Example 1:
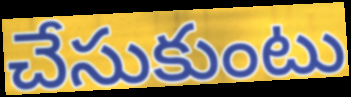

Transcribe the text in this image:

చేసుకుంటు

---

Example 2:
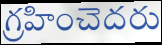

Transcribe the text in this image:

గ్రహించెదరు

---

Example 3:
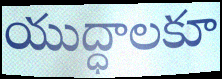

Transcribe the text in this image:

యుద్ధాలకూ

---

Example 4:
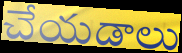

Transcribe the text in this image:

చేయడాలు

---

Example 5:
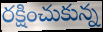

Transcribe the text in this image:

రక్షించుకున్న